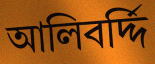
আলিবর্দ্দি